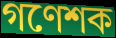
গণেশক